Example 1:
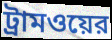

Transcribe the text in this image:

ট্রামওয়ের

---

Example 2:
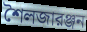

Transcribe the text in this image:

শৈলজারঞ্জন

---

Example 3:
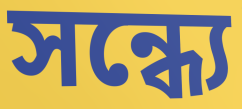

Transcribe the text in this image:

সন্ধ্যে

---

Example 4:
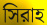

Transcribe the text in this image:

সিরাহ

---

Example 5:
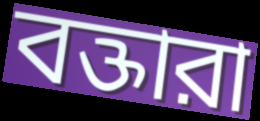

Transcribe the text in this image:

বক্তারা